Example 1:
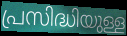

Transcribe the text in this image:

പ്രസിദ്ധിയുള്ള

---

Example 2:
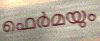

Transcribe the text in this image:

ഫെർമയും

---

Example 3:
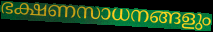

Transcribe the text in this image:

ഭക്ഷണസാധനങ്ങളും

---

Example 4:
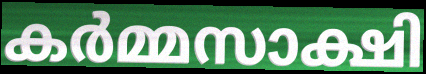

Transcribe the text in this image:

കർമ്മസാക്ഷി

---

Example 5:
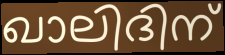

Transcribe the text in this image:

ഖാലിദിന്